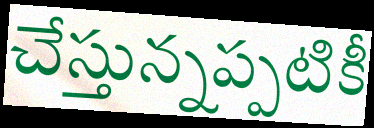
చేస్తున్నప్పటికీ